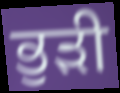
ਭੁੜੀ